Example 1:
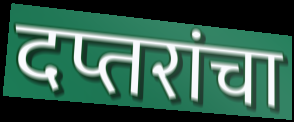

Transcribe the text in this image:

दप्तरांचा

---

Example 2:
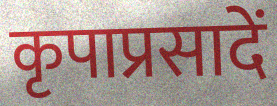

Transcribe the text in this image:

कृपाप्रसादें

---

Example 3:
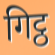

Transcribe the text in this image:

गिट्ठ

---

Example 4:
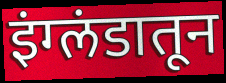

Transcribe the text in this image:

इंग्लंडातून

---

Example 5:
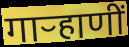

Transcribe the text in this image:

गाऱ्हाणीं